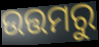
ଉତ୍ତମରୁ